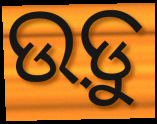
ଉଡ଼ୁ